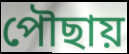
পৌছায়